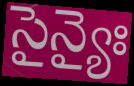
సైన్యైః